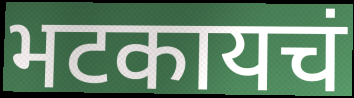
भटकायचं